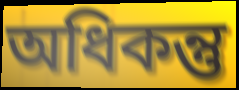
অধিকন্তু